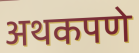
अथकपणे